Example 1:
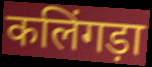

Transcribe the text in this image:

कलिंगड़ा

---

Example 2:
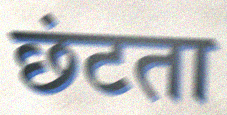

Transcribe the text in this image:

छंटता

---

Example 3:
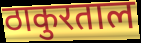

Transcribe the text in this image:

ठाकुरताल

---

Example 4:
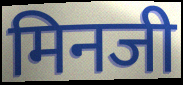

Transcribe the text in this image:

मिनजी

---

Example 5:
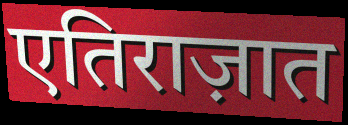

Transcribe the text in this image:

एतिराज़ात